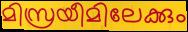
മിസ്രയീമിലേക്കും